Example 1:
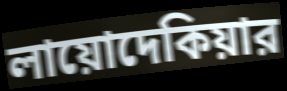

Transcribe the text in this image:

লায়োদেকিয়ার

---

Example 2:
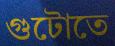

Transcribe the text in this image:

গুটোতে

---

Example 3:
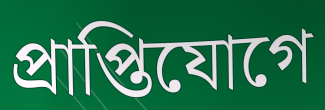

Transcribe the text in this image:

প্রাপ্তিযোগে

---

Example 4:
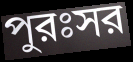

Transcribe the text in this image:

পুরঃসর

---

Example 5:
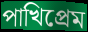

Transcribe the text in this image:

পাখিপ্রেম